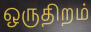
ஒருதிறம்